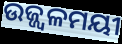
ଉଜ୍ଜ୍ୱଳମୟୀ